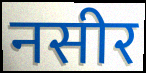
नसीर